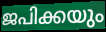
ജപിക്കയും